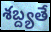
శబ్ద్యతే